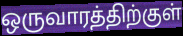
ஒருவாரத்திற்குள்